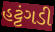
હટ્ટંગડી